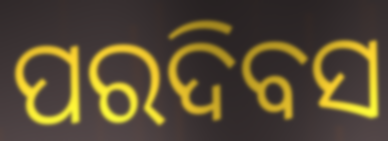
ପରଦିବସ